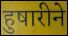
हुषारीने